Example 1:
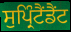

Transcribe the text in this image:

ਸੁਪ੍ਰਿੰਟੈਂਡੈਂਟ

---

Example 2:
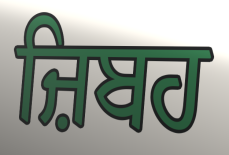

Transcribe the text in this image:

ਜ਼ਿਬਹ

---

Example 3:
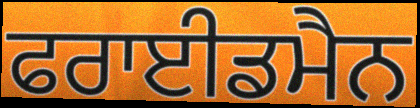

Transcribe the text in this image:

ਫਰਾਈਡਮੈਨ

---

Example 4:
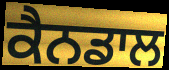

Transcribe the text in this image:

ਕੈਨਡਾਲ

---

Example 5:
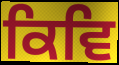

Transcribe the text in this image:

ਕਿਵਿ